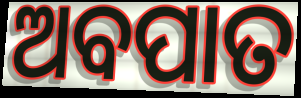
ଅବପାତ